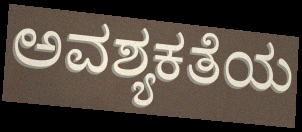
ಅವಶ್ಯಕತೆಯ